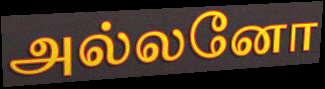
அல்லனோ